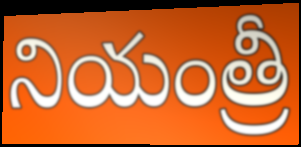
నియంత్రీ